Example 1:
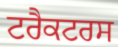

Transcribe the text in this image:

ਟਰੈਕਟਰਸ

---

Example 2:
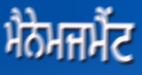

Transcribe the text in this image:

ਮੈਨੇਮਜਮੈਂਟ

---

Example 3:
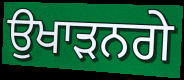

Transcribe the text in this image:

ਉਖਾੜਨਗੇ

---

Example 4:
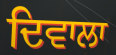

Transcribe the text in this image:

ਦਿਵਾਲਾ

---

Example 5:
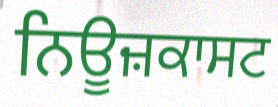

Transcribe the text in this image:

ਨਿਊਜ਼ਕਾਸਟ